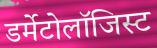
डर्मेटोलॉजिस्ट